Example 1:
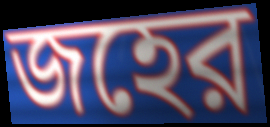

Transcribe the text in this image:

জহের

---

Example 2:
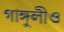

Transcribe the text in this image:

গাঙ্গুলীও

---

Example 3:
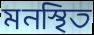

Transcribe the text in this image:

মনস্থিত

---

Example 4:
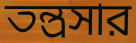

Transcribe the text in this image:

তন্ত্রসার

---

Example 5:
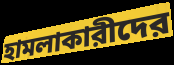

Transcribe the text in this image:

হামলাকারীদের